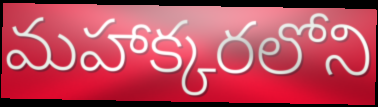
మహాక్కరలోని